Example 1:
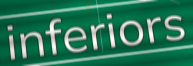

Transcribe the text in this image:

inferiors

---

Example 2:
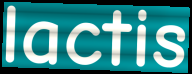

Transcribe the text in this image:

lactis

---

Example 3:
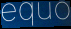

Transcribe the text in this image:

equo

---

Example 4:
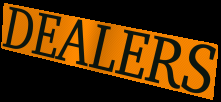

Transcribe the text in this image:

DEALERS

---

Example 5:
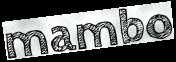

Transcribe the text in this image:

mambo